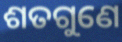
ଶତଗୁଣେ